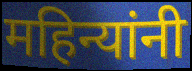
महिन्यांनी